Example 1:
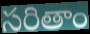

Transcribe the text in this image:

సరితాం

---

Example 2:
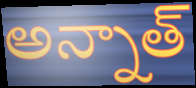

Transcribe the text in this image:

అన్నాత్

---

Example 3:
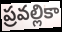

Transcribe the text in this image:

ప్రవల్లికా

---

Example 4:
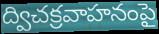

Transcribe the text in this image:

ద్విచక్రవాహనంపై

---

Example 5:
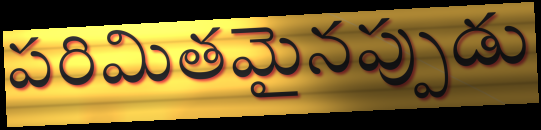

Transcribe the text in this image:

పరిమితమైనప్పుడు